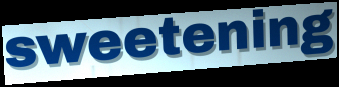
sweetening